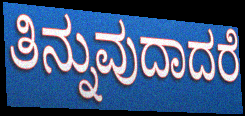
ತಿನ್ನುವುದಾದರೆ